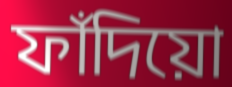
ফাঁদিয়ো